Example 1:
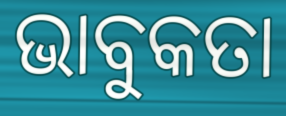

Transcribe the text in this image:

ଭାବୁକତା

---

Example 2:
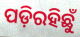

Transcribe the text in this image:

ପଡ଼ିରହିଛୁଁ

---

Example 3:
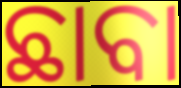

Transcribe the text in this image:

ଛାବା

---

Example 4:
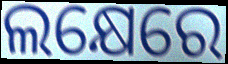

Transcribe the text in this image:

ଲକ୍ଷେରେ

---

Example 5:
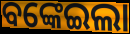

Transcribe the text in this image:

ବଙ୍କେଇଲା